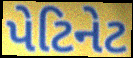
પેટિનેટ